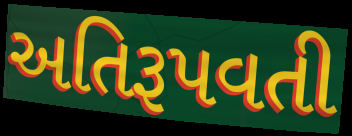
અતિરૂપવતી